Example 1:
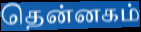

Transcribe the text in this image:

தென்னகம்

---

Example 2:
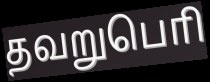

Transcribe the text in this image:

தவறுபெரி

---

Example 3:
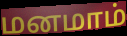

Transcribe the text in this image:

மனமாம்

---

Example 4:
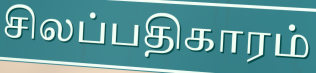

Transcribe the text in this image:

சிலப்பதிகாரம்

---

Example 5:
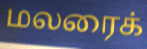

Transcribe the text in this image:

மலரைக்